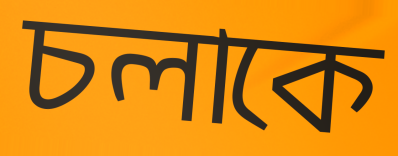
চলাকে